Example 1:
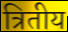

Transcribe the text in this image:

त्रितीय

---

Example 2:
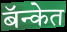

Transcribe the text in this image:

बॅन्केत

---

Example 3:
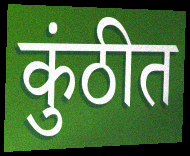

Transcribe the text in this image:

कुंठीत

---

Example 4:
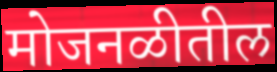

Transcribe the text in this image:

मोजनळीतील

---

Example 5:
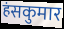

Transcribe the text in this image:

हंसकुमार